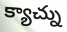
క్యాచ్ను